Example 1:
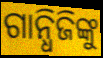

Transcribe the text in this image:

ଗାନ୍ଧିଜିଙ୍କୁ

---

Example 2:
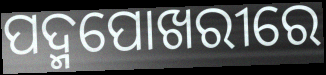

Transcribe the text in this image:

ପଦ୍ମପୋଖରୀରେ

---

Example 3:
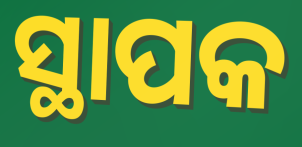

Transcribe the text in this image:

ସ୍ଥାପକ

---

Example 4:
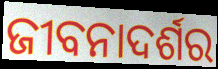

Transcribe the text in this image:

ଜୀବନାଦର୍ଶର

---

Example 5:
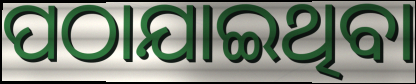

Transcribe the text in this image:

ପଠାଯାଇଥିବା